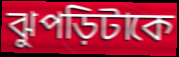
ঝুপড়িটাকে